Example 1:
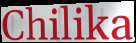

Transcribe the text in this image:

Chilika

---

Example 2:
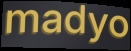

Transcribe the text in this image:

madyo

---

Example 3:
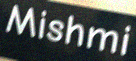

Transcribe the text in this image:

Mishmi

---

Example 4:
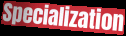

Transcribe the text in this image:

Specialization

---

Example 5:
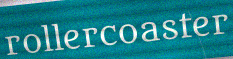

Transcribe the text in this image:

rollercoaster